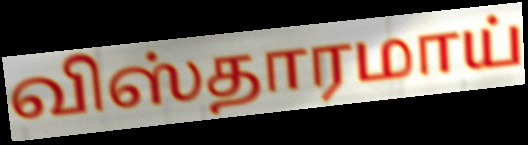
விஸ்தாரமாய்